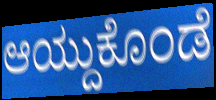
ಆಯ್ದುಕೊಂಡೆ